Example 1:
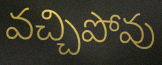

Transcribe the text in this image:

వచ్చిపోవు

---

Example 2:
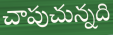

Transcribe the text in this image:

చాపుచున్నది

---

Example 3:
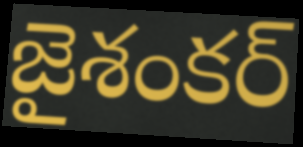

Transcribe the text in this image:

జైశంకర్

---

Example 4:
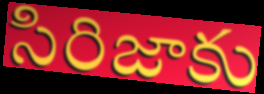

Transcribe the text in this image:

సిరిజాకు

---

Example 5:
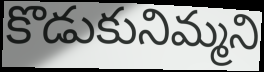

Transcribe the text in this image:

కొడుకునిమ్మని